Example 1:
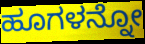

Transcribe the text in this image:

ಹೂಗಳನ್ನೋ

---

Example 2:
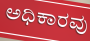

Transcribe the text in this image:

ಅಧಿಕಾರವು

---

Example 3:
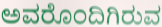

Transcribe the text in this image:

ಅವರೊಂದಿಗಿರುವ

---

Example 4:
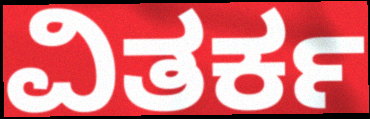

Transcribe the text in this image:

ವಿತರ್ಕ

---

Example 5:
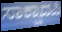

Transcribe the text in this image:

ಸಾಕ್ಷಾದಪಿ